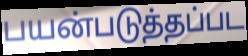
பயன்படுத்தப்பட